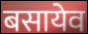
बसायेव